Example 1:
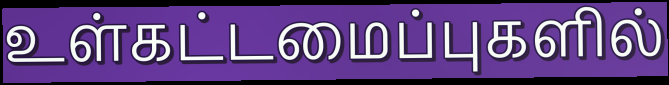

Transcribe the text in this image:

உள்கட்டமைப்புகளில்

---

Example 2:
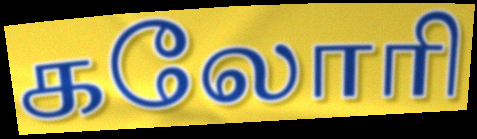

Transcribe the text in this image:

கலோரி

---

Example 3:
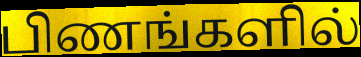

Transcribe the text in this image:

பிணங்களில்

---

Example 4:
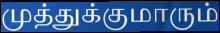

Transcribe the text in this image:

முத்துக்குமாரும்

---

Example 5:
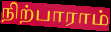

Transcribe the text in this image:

நிற்பாராம்